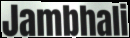
Jambhali